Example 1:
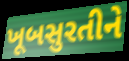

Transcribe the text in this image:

ખૂબસુરતીને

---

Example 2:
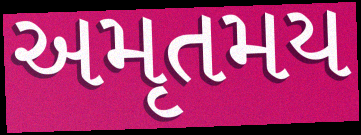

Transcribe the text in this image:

અમૃતમય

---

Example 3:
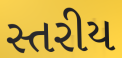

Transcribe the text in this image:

સ્તરીય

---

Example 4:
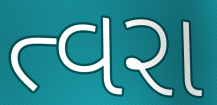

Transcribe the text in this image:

ત્વરા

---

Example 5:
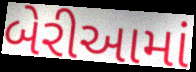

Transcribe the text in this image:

બેરીઆમાં